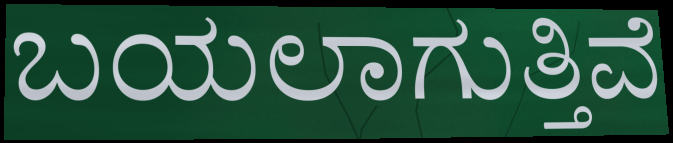
ಬಯಲಾಗುತ್ತಿವೆ